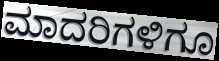
ಮಾದರಿಗಳಿಗೂ